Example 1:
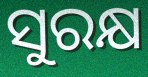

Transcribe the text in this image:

ସୁରକ୍ଷ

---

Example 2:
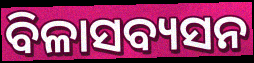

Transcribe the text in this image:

ବିଳାସବ୍ୟସନ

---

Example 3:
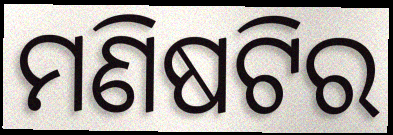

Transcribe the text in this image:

ମଣିଷଟିର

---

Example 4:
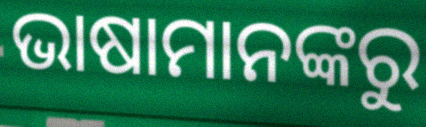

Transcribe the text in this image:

ଭାଷାମାନଙ୍କରୁ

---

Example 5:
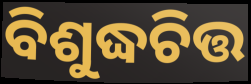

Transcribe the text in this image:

ବିଶୁଦ୍ଧଚିତ୍ତ